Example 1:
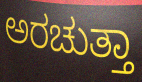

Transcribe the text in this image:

ಅರಚುತ್ತಾ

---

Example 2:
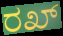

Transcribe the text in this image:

ರಖ್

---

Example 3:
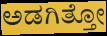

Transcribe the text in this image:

ಅಡಗಿತ್ತೋ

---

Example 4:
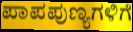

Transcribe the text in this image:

ಪಾಪಪುಣ್ಯಗಳಿಗೆ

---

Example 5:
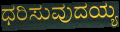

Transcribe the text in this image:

ಧರಿಸುವುದಯ್ಯ